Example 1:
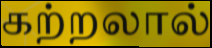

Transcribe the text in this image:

கற்றலால்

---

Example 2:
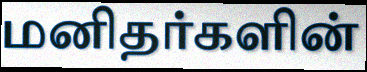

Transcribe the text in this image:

மனிதர்களின்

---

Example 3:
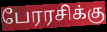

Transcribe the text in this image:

பேரரசிக்கு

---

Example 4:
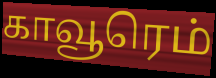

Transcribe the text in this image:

காவூரெம்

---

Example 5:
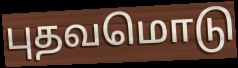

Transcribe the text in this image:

புதவமொடு